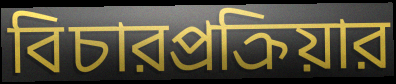
বিচারপ্রক্রিয়ার